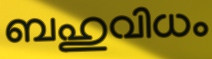
ബഹുവിധം